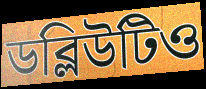
ডব্লিউটিও